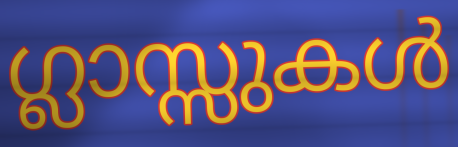
ഗ്ലാസ്സുകൾ